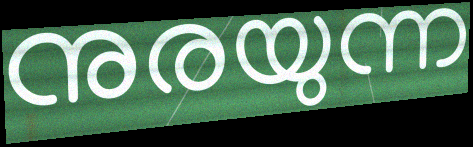
നുരയുന്ന